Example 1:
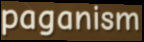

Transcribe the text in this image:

paganism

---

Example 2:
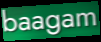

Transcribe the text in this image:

baagam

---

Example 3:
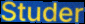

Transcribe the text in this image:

Studer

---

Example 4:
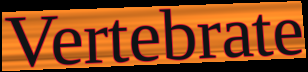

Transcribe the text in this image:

Vertebrate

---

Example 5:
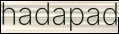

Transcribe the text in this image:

hadapad